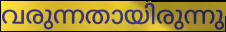
വരുന്നതായിരുന്നു